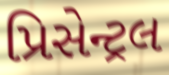
પ્રિસેન્ટ્રલ